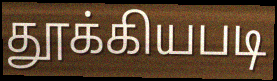
தூக்கியபடி